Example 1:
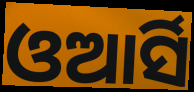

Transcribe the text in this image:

ଓଆର୍ସି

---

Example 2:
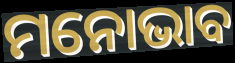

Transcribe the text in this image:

ମନୋଭାବ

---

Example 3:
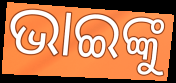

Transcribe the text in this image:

ଭାଇଙ୍କୁ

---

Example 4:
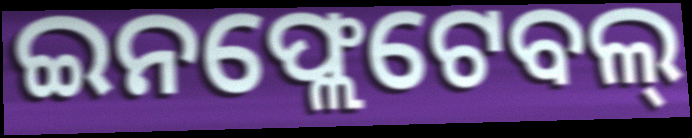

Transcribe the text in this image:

ଇନଫ୍ଲେଟେବଲ୍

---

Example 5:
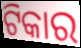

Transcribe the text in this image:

ଟିକାର